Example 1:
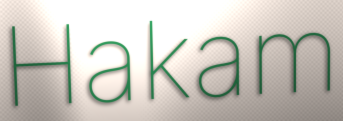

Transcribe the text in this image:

Hakam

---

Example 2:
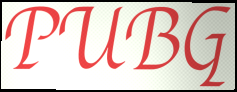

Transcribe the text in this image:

PUBG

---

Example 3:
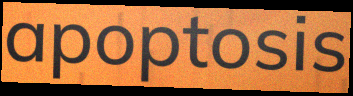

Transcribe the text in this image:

apoptosis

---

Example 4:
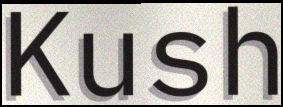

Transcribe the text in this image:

Kush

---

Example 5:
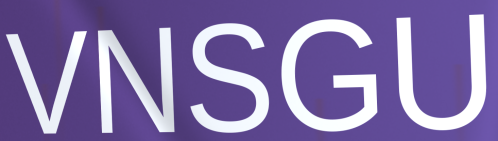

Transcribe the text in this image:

VNSGU